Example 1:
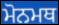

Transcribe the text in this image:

ਮੋਨਮਥ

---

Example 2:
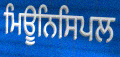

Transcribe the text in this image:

ਮਿਊਨਿਸਿਪਲ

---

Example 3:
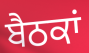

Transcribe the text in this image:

ਬੈਠਕਾਂ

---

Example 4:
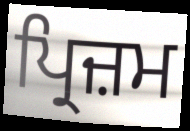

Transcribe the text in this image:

ਪ੍ਰਿਜ਼ਮ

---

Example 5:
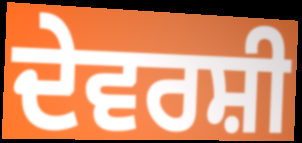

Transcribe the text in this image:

ਦੇਵਰਸ਼ੀ